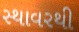
સ્થાવરથી